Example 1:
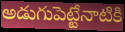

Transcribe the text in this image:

అడుగుపెట్టేనాటికి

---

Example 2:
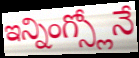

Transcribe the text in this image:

ఇన్నింగ్స్లోనే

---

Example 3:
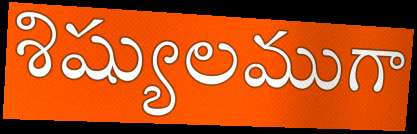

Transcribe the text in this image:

శిష్యులముగా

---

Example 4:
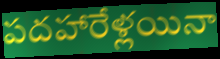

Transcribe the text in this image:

పదహారేళ్లయినా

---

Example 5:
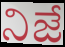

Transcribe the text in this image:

నిజే